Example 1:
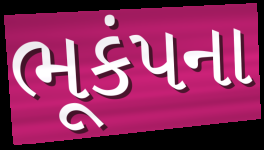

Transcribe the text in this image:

ભૂકંપના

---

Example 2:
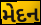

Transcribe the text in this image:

મેદન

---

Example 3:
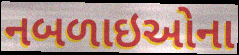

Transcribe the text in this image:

નબળાઇઓના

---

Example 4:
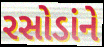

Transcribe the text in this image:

રસોડાંને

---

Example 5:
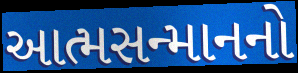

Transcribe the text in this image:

આત્મસન્માનનો